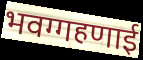
भवग्गहणाई